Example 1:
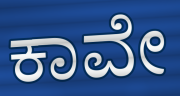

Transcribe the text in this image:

ಕಾವೇ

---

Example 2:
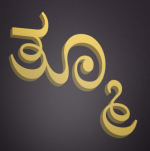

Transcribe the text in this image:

ತ್ಮೂ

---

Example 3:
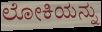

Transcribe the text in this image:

ಲೋಕಿಯನ್ನು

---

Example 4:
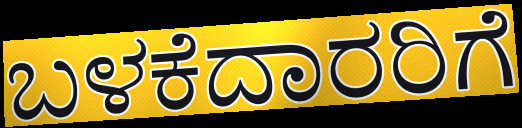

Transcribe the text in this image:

ಬಳಕೆದಾರರಿಗೆ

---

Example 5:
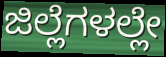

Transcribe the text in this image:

ಜಿಲ್ಲೆಗಳಲ್ಲೇ